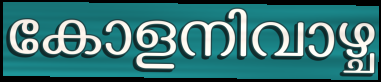
കോളനിവാഴ്ച